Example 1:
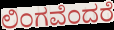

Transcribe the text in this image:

ಲಿಂಗವೆಂದರೆ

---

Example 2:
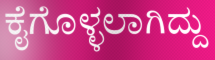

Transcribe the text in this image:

ಕೈಗೊಳ್ಳಲಾಗಿದ್ದು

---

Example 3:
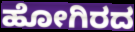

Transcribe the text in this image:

ಹೋಗಿರದ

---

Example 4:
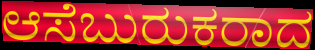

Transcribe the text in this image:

ಆಸೆಬುರುಕರಾದ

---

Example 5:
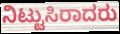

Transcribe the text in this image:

ನಿಟ್ಟುಸಿರಾದರು